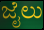
ಜೈಲು